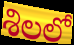
శిలలో